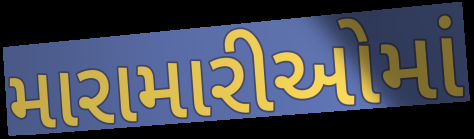
મારામારીઓમાં